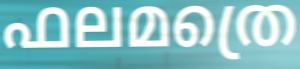
ഫലമത്രെ